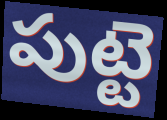
పుట్టె